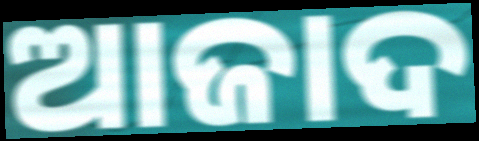
ଆଜାଦ